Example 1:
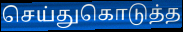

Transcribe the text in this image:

செய்துகொடுத்த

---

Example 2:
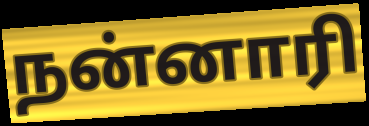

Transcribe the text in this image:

நன்னாரி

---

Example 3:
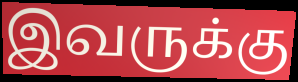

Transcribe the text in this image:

இவருக்கு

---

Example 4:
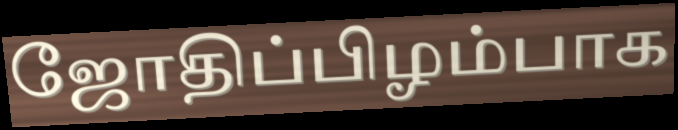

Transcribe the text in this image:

ஜோதிப்பிழம்பாக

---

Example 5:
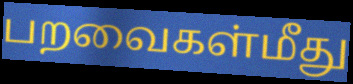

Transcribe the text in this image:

பறவைகள்மீது